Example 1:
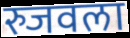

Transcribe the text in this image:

रुजवला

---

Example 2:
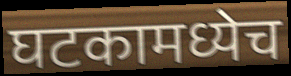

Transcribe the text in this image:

घटकामध्येच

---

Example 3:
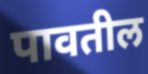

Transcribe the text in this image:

पावतील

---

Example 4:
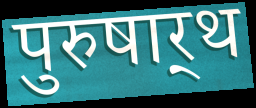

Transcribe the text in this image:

पुरुषार्थ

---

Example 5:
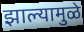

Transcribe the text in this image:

झाल्यामुळे